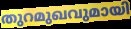
തുറമുഖവുമായി